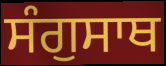
ਸੰਗੁਸਾਥ